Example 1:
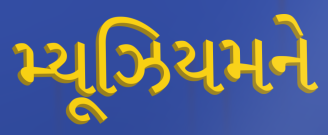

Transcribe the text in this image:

મ્યૂઝિયમને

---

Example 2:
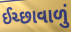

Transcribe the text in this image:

ઈચ્છાવાળું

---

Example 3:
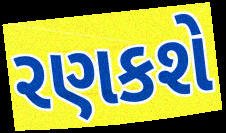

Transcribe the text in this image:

રણકશે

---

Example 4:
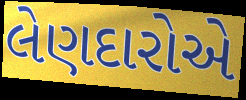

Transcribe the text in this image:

લેણદારોએ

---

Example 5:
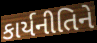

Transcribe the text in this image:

કાર્યનીતિને